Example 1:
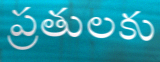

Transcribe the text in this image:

ప్రతులకు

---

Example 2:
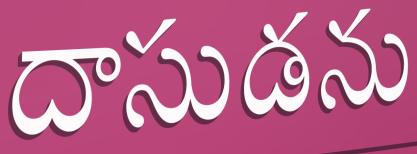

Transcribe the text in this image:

దాసుడను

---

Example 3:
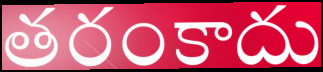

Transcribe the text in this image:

తరంకాదు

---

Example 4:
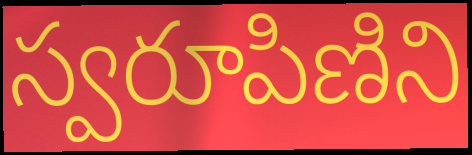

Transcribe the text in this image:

స్వరూపిణిని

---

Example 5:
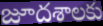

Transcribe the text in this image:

జూదశాలకు